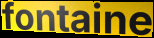
fontaine